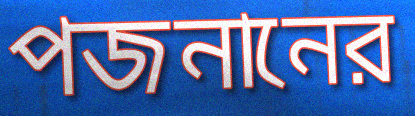
পজনানের